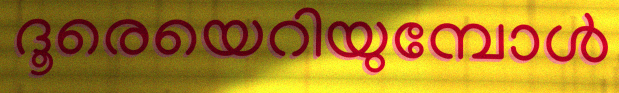
ദൂരെയെറിയുമ്പോൾ